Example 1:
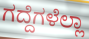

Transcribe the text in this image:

ಗದ್ದೆಗಳೆಲ್ಲಾ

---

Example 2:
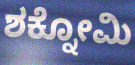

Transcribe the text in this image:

ಶಕ್ನೋಮಿ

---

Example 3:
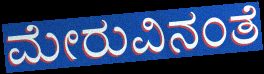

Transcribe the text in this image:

ಮೇರುವಿನಂತೆ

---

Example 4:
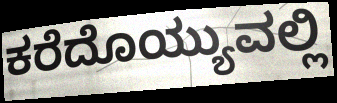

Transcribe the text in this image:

ಕರೆದೊಯ್ಯುವಲ್ಲಿ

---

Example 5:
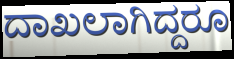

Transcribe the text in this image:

ದಾಖಲಾಗಿದ್ದರೂ